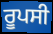
ਰੂਪਸੀ